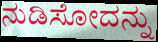
ನುಡಿಸೋದನ್ನು